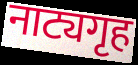
नाट्यगृह